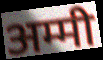
अम्मी